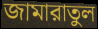
জামারাতুল